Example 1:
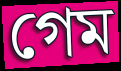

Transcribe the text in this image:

গেম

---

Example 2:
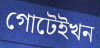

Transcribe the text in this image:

গোটেইখন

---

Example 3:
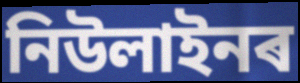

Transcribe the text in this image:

নিউলাইনৰ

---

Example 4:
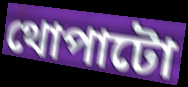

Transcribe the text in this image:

থোপাটো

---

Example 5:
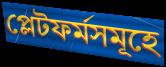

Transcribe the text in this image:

প্লেটফৰ্মসমূহে